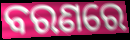
ବରଣରେ